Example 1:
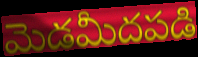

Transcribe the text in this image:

మెడమీదపడి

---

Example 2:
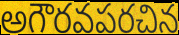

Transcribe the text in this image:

అగౌరవపరచిన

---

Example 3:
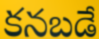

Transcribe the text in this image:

కనబడే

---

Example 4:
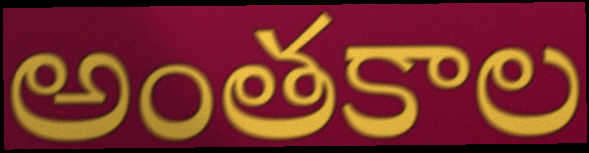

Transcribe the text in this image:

అంతకాల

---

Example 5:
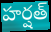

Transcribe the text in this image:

హర్షత్